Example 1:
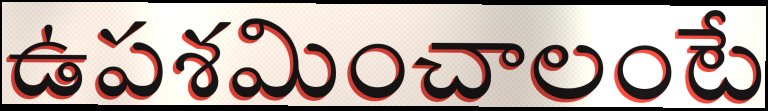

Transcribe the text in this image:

ఉపశమించాలంటే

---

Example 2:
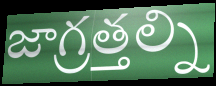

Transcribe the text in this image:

జాగ్రత్తల్ని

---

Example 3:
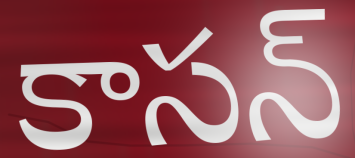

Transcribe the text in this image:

కాసన్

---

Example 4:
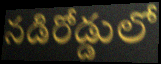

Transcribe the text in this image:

నడిరోడ్డులో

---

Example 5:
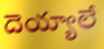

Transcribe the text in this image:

దెయ్యాలే